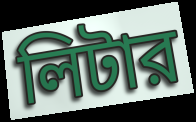
লিটার